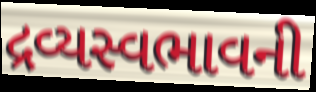
દ્રવ્યસ્વભાવની